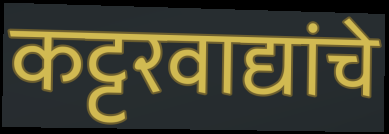
कट्टरवाद्यांचे